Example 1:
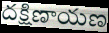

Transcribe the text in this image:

దక్షిణాయణ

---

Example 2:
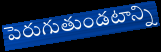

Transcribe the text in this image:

పెరుగుతుండటాన్ని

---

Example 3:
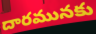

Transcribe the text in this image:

దారమునకు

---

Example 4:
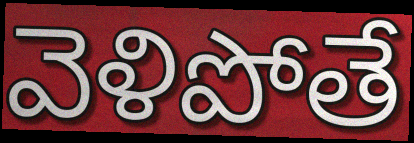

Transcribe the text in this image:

వెళిపోతే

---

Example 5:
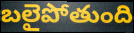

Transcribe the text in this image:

బలైపోతుంది